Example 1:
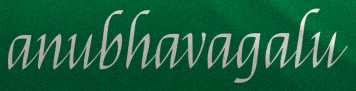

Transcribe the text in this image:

anubhavagalu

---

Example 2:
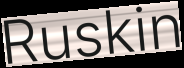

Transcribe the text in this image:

Ruskin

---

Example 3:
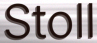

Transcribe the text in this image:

Stoll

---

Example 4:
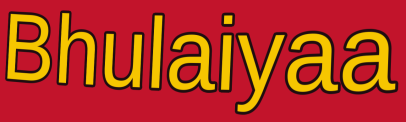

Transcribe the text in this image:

Bhulaiyaa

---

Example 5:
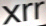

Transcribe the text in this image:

xrr